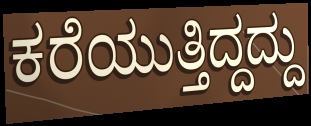
ಕರೆಯುತ್ತಿದ್ದದ್ದು